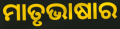
ମାତୃଭାଷାର